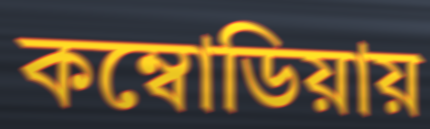
কম্বোডিয়ায়